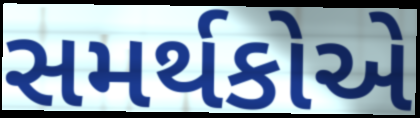
સમર્થકોએ